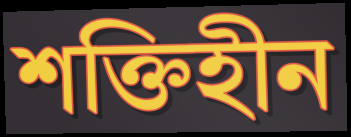
শক্তিহীন